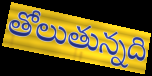
తోలుతున్నది